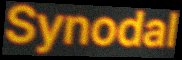
Synodal